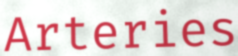
Arteries